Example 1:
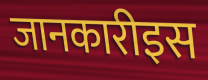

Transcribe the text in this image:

जानकारीइस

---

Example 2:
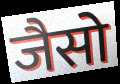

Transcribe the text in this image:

जैसो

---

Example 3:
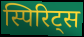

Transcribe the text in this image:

स्पिरिट्स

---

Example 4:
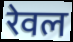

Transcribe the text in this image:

रेवल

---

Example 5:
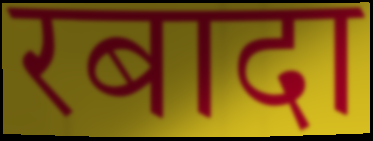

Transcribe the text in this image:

रबादा